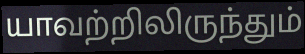
யாவற்றிலிருந்தும்